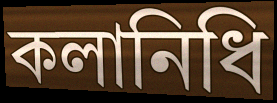
কলানিধি